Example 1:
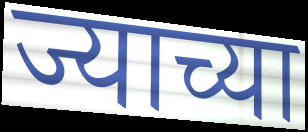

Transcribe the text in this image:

ज्याच्या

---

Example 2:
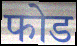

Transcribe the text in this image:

फोड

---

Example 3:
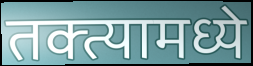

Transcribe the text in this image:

तक्‍त्यामध्ये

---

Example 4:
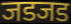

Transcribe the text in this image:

जडजड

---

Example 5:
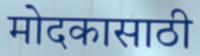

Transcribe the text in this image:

मोदकासाठी